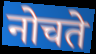
नोचते